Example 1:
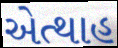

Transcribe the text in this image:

એત્થાહ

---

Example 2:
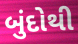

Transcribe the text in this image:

બુંદોથી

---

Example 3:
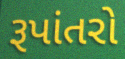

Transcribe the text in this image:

રૂપાંતરો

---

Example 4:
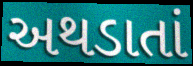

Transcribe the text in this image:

અથડાતાં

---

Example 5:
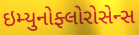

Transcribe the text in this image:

ઇમ્યુનોફ્લોરોસેન્સ